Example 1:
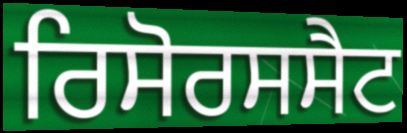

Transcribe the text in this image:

ਰਿਸੋਰਸਸੈਟ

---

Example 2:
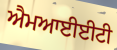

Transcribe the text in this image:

ਐਮਆਈਈਟੀ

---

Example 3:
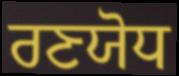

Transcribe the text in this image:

ਰਣਯੋਧ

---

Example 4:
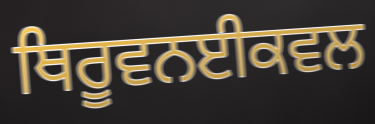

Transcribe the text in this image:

ਥਿਰੂਵਨਈਕਵਲ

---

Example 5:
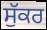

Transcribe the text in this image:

ਸੁੱਕਰ